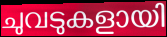
ചുവടുകളായി